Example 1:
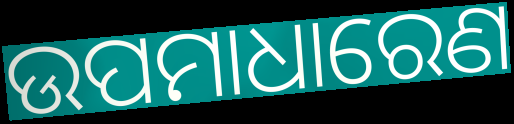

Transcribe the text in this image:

ଉପମାଧାରେଣ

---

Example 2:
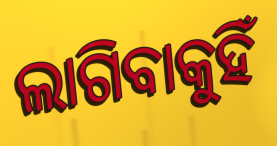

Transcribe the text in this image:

ଲାଗିବାକୁହିଁ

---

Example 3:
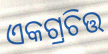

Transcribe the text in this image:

ଏକଗ୍ରଚିତ୍ତ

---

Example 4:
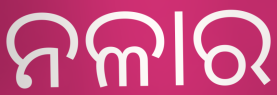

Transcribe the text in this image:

ନଳାର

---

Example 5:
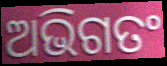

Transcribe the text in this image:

ଅଭିଗତଂ